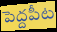
పెద్దపీట